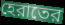
হেরাতের